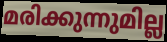
മരിക്കുന്നുമില്ല